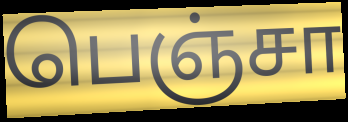
பெஞ்சா